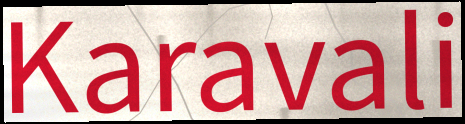
Karavali